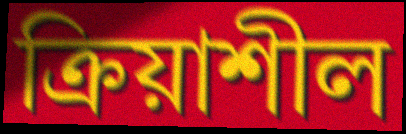
ক্রিয়াশীল